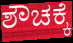
ಶೌಚಕ್ಕೆ